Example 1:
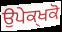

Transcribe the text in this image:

ਉਪੇਕ੍ਖਕੋ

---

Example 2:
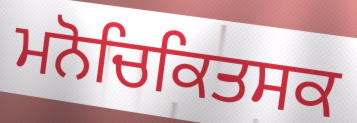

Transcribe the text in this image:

ਮਨੋਚਿਕਿਤਸਕ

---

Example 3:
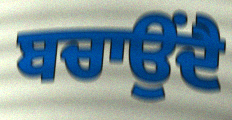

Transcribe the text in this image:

ਬਚਾਉਂਦੈ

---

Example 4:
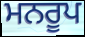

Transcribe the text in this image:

ਮਨਰੂਪ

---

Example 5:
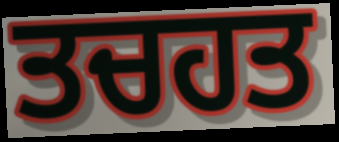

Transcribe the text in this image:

ਤਚਹਤ